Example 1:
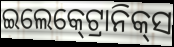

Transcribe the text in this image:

ଇଲେକ୍‍ଟ୍ରୋନିକ୍‍ସ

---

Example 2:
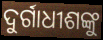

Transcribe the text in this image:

ଦୁର୍ଗାଧୀଶଙ୍କୁ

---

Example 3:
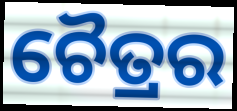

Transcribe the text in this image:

ଚୈତ୍ରର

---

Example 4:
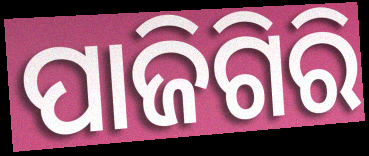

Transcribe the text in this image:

ପାଜିଗିରି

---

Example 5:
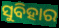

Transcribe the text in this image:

ସୁବିହାର